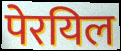
पेरयिल